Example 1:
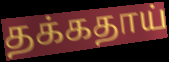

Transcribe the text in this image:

தக்கதாய்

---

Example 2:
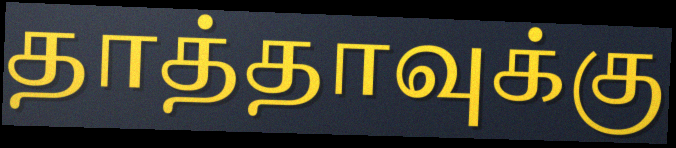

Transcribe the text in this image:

தாத்தாவுக்கு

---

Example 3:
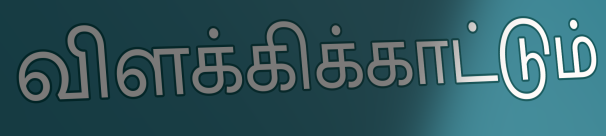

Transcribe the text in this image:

விளக்கிக்காட்டும்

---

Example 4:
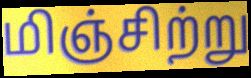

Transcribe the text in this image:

மிஞ்சிற்று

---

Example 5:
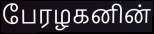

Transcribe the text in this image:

பேரழகனின்